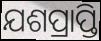
ଯଶପ୍ରାପ୍ତି